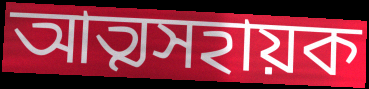
আত্মসহায়ক